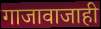
गाजावाजाही